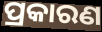
ପ୍ରକାରଣ